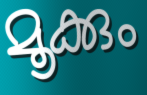
മൂക്കും